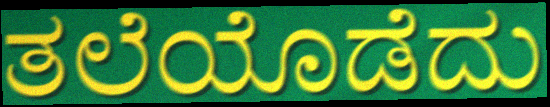
ತಲೆಯೊಡೆದು